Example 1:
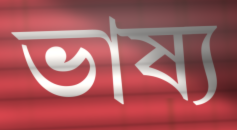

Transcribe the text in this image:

ভাষ্য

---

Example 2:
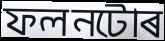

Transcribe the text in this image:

ফলনটোৰ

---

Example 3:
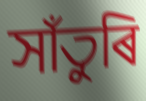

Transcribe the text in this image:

সাঁতুৰি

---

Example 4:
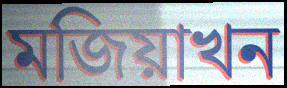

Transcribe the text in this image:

মজিয়াখন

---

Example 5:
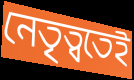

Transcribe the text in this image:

নেতৃত্বতেই